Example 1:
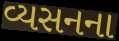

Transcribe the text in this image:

વ્યસનના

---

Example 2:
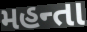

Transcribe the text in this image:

મહન્તા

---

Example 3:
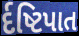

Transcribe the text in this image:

ર્દષ્ટિપાત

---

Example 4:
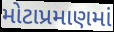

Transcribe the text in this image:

મોટાપ્રમાણમાં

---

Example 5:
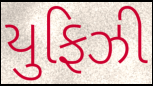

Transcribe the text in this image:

યુફિઝી